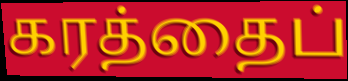
கரத்தைப்